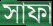
সাফা